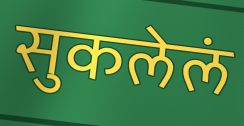
सुकलेलं